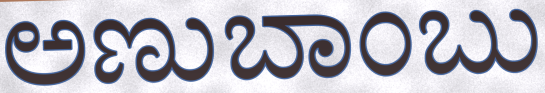
ಅಣುಬಾಂಬು